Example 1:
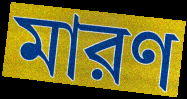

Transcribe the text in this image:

মারণ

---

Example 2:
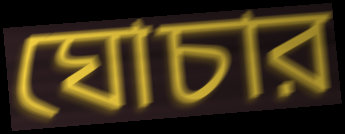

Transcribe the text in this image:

ঘোচার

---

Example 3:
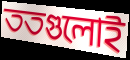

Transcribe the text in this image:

ততগুলোই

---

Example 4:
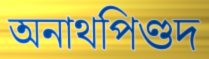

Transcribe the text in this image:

অনাথপিণ্ডদ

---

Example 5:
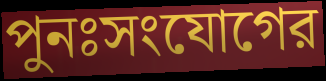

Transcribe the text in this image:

পুনঃসংযোগের